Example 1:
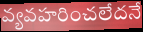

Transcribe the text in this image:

వ్యవహరించలేదనే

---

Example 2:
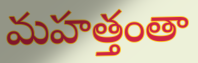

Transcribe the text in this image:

మహత్తంతా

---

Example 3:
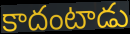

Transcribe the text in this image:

కాదంటాడు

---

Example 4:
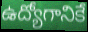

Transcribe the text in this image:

ఉద్యోగానికే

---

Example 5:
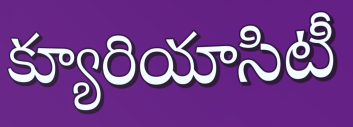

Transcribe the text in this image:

క్యూరియాసిటీ